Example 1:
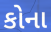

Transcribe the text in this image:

કોના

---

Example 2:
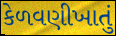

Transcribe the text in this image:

કેળવણીખાતું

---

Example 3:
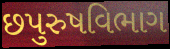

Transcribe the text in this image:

છપુરુષવિભાગ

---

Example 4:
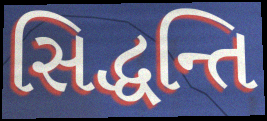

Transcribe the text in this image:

સિદ્ધન્તિ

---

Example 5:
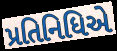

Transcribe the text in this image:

પ્રતિનિધિએ